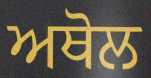
ਅਥੋਲ